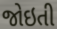
જોઇતી